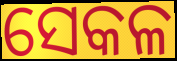
ସେକଳ